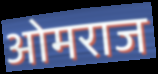
ओमराज